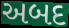
અબદ